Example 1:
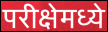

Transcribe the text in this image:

परीक्षेमध्ये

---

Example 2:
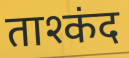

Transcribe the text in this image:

ताश्कंद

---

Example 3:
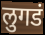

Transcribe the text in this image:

लुगडं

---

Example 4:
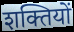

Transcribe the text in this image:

शक्तियों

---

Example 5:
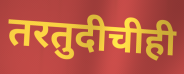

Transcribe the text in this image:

तरतुदीचीही